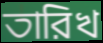
তারিখ